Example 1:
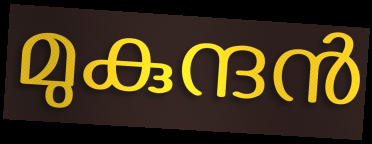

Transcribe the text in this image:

മുകുന്ദൻ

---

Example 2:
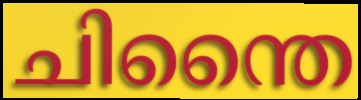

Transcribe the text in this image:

ചിന്തൈ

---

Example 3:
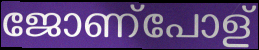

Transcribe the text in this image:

ജോണ്പോള്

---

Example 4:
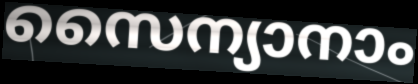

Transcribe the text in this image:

സൈന്യാനാം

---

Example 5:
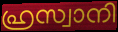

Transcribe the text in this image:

ഹ്രസ്വാനി